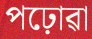
পঢ়োৱা